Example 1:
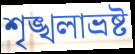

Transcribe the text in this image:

শৃঙ্খলাভ্রষ্ট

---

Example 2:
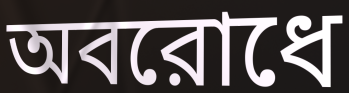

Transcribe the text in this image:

অবরোধে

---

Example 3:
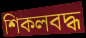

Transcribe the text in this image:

শিকলবদ্ধ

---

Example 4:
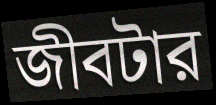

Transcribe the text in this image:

জীবটার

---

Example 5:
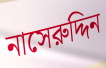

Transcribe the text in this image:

নাসেরুদ্দিন